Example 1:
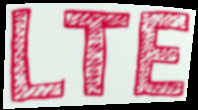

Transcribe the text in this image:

LTE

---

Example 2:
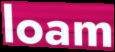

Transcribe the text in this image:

loam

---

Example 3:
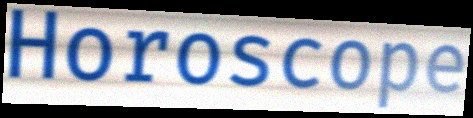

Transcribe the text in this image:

Horoscope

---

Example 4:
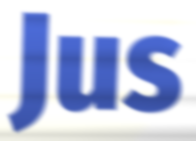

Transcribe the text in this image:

Jus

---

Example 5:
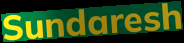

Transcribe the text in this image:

Sundaresh